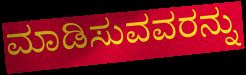
ಮಾಡಿಸುವವರನ್ನು